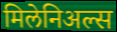
मिलेनिअल्स